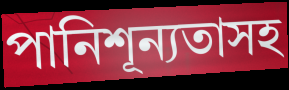
পানিশূন্যতাসহ